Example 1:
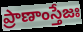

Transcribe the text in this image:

ప్రాణాంస్తేజః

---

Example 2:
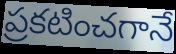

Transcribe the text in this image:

ప్రకటించగానే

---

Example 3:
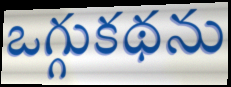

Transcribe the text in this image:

ఒగ్గుకథను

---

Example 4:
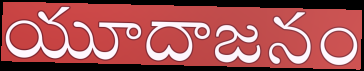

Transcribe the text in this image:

యూదాజనం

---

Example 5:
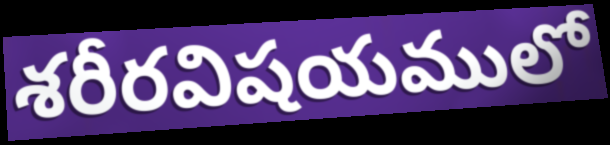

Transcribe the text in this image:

శరీరవిషయములో